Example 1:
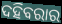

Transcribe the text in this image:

ଦହିବରାର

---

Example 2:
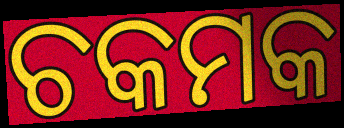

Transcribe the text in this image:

ଚକମକ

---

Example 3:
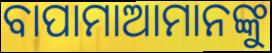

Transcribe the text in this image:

ବାପାମାଆମାନଙ୍କୁ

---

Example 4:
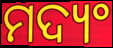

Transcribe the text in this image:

ମଦ୍ୟଂ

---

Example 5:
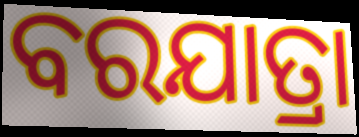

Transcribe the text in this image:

ବରଯାତ୍ରା